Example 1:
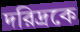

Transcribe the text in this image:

দরিদ্রকে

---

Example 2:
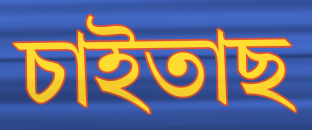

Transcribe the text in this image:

চাইতাছ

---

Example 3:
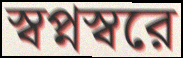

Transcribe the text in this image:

স্বপ্নস্বরে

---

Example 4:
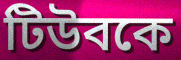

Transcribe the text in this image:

টিউবকে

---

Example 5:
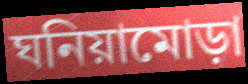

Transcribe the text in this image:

ঘনিয়ামোড়া